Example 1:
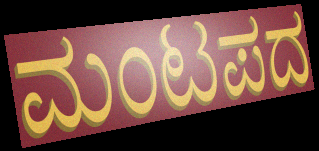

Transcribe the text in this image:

ಮಂಟಪದ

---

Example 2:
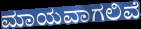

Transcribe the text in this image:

ಮಾಯವಾಗಲಿವೆ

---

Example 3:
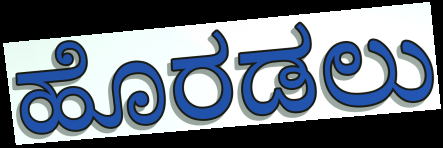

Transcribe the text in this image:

ಹೊರಡಲು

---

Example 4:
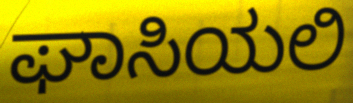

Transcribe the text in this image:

ಘಾಸಿಯಲಿ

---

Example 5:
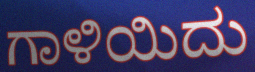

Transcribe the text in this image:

ಗಾಳಿಯಿದು